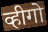
व्हीगो